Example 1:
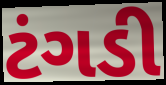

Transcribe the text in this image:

ટંગડી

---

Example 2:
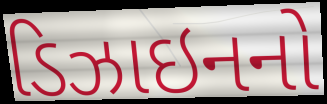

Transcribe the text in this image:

ડિઝાઇનનો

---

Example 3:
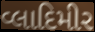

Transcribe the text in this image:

વ્લાદિમીર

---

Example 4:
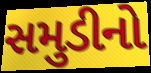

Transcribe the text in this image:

સમુડીનો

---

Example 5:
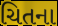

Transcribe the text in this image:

ચિતના